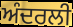
ਅੰਦਰਲੀ